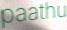
paathu